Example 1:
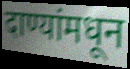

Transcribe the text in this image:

दाण्यांमधून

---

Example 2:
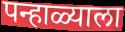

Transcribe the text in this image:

पन्हाळ्याला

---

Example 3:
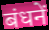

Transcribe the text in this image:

बंधनें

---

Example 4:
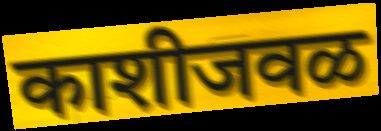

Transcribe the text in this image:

काशीजवळ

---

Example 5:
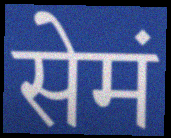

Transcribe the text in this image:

सेमं